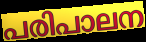
പരിപാലന